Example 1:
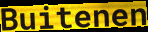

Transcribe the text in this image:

Buitenen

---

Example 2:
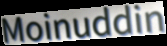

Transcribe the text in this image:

Moinuddin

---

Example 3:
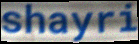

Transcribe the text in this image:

shayri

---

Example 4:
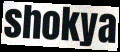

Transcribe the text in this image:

shokya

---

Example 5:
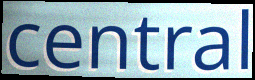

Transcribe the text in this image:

central